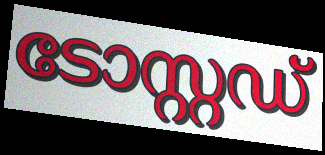
ടോസ്റ്റഡ്